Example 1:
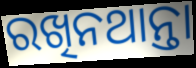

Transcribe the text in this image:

ରଖିନଥାନ୍ତା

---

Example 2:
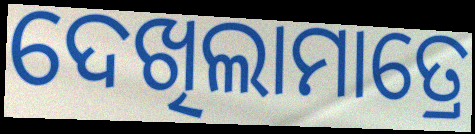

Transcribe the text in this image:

ଦେଖିଲାମାତ୍ରେ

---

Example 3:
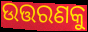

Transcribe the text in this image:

ଉତ୍ତରଣକୁ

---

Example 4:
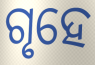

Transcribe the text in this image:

ଗୃହେ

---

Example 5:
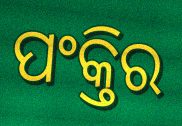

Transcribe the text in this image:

ପଂକ୍ତିର